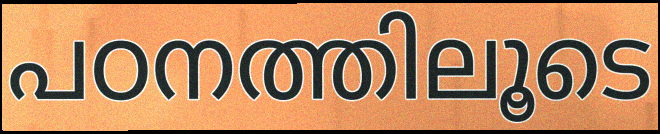
പഠനത്തിലൂടെ